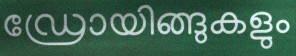
ഡ്രോയിങ്ങുകളും